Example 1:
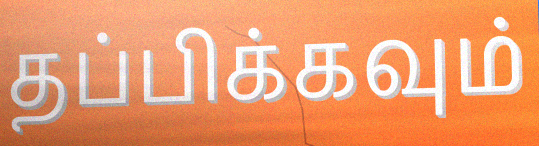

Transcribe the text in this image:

தப்பிக்கவும்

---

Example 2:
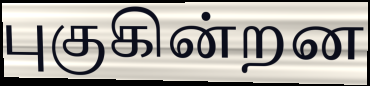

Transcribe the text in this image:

புகுகின்றன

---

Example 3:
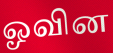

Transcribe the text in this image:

ஓவின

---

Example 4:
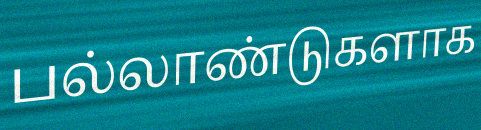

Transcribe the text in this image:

பல்லாண்டுகளாக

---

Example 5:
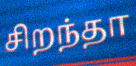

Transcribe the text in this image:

சிறந்தா